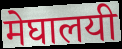
मेघालयी